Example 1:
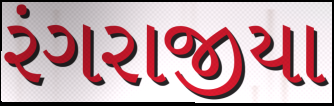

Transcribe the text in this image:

રંગરાજીયા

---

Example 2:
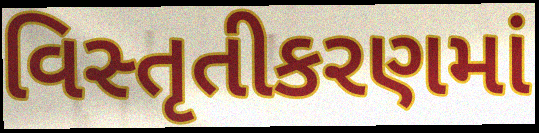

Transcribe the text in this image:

વિસ્તૃતીકરણમાં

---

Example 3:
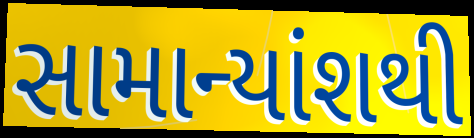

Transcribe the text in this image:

સામાન્યાંશથી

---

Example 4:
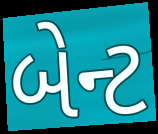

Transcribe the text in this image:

બેન્ટ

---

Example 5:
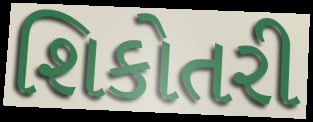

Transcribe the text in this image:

શિકોતરી